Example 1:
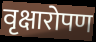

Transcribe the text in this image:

वृक्षारोपण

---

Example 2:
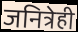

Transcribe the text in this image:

जनित्रेही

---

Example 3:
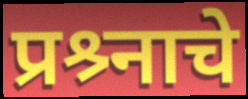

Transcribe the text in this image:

प्रश्र्नाचे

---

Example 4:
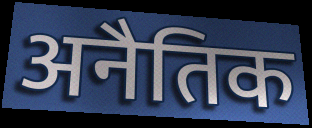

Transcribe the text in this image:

अनैतिक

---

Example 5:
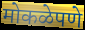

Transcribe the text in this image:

मोकळेपणे